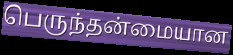
பெருந்தன்மையான